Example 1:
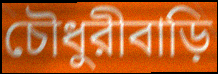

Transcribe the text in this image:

চৌধুরীবাড়ি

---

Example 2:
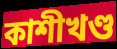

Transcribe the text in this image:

কাশীখণ্ড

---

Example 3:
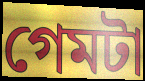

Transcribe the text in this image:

গেমটা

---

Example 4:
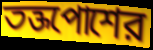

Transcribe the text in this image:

তক্তপোশের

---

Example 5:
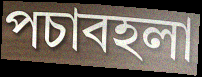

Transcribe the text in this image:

পচাবহলা